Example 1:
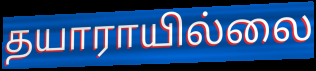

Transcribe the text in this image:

தயாராயில்லை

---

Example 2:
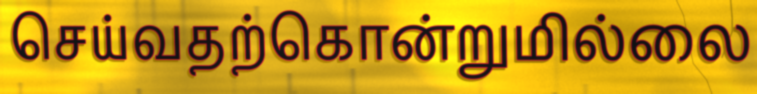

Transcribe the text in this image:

செய்வதற்கொன்றுமில்லை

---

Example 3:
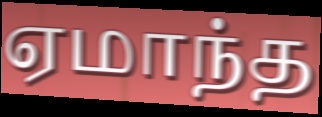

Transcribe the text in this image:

ஏமாந்த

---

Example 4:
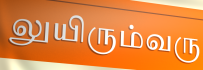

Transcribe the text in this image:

லுயிரும்வரு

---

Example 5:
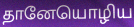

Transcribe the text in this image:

தானேயொழிய